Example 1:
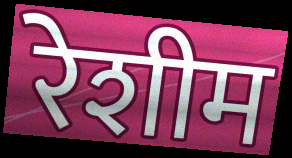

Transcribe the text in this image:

रेशीम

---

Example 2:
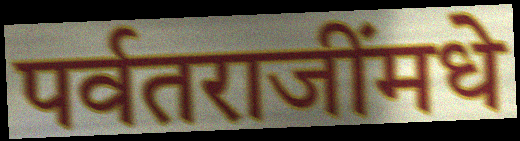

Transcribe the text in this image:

पर्वतराजींमधे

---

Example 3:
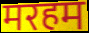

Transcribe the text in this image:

मरहम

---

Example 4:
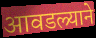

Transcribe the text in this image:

आवडल्याने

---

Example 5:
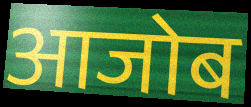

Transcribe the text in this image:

आजोब